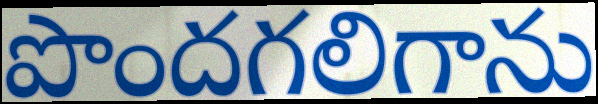
పొందగలిగాను